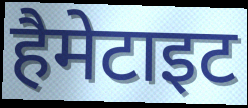
हैमेटाइट